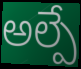
అల్పే